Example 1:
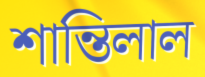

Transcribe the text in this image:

শান্তিলাল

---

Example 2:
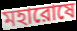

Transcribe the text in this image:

মহারোষে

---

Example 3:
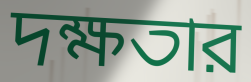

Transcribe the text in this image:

দক্ষতার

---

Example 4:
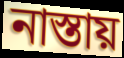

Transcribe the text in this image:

নাস্তায়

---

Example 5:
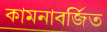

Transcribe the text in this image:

কামনাবর্জিত